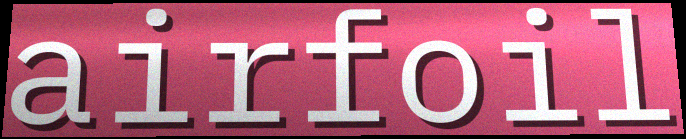
airfoil